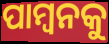
ପାମ୍ବନକୁ